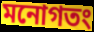
মনোগতং